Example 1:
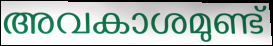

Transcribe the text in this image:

അവകാശമുണ്ട്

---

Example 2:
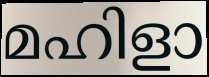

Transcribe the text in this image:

മഹിളാ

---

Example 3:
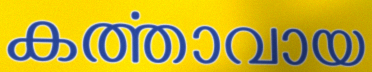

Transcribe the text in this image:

കൎത്താവായ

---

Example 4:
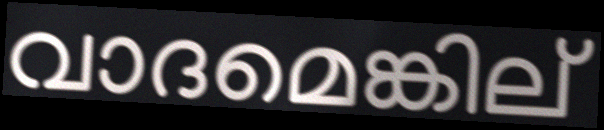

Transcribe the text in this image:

വാദമെങ്കില്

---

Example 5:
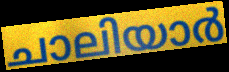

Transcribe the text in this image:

ചാലിയാർ